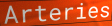
Arteries